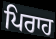
ਪਿਰਾਹ